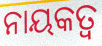
ନାୟକତ୍ୱ